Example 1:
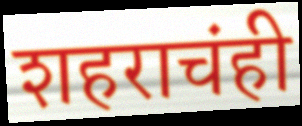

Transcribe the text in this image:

शहराचंही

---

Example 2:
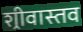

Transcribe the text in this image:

श्रीवास्तव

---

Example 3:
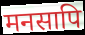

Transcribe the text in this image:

मनसापि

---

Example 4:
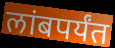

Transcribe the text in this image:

लांबपर्यंत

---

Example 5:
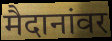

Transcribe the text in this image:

मैदानांवर